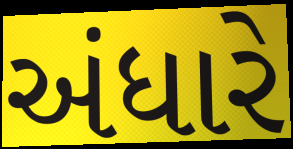
અંધારે